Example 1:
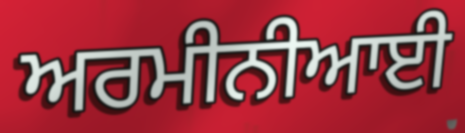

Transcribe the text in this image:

ਅਰਮੀਨੀਆਈ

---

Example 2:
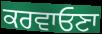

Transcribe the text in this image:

ਕਰਵਾਓਣਾ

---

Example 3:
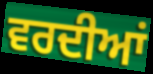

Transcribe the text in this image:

ਵਰਦੀਆਂ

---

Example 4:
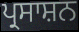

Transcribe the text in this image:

ਪ੍ਰਸਾਸ਼ਨ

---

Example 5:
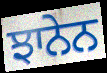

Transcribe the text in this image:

ਝਾਨੇਨ